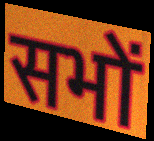
सभों